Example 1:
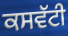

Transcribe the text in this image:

ਕਸਵੱਟੀ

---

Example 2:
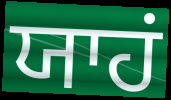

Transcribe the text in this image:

ਯਾਹਂ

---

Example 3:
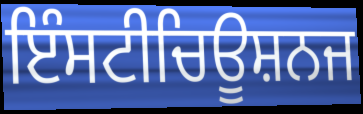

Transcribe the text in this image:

ਇੰਸਟੀਚਿਊਸ਼ਨਜ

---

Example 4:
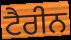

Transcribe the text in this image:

ਟੈਰੀਨ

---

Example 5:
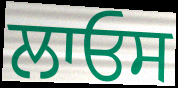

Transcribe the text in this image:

ਲਾਓਸ